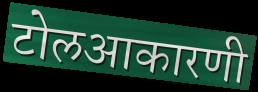
टोलआकारणी